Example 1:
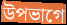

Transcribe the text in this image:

উপভাগে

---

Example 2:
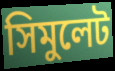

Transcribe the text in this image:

সিমুলেট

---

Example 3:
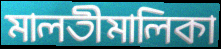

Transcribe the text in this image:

মালতীমালিকা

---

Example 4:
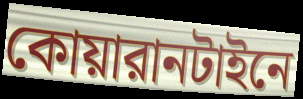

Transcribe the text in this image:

কোয়ারানটাইনে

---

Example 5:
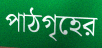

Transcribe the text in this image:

পাঠগৃহের